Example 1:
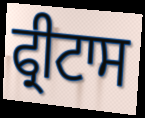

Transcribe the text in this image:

ਫ੍ਰੀਟਾਸ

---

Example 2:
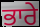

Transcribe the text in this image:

ਭਾਰੇ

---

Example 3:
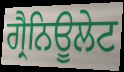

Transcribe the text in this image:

ਗ੍ਰੈਨਿਊਲੇਟ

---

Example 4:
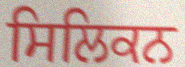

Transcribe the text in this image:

ਸਿਲਿਕਨ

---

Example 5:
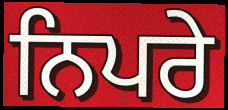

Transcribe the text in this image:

ਨਿਪਰੇ